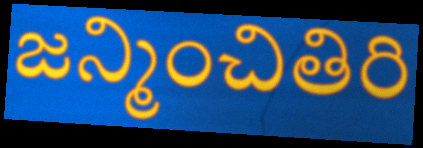
జన్మించితిరి